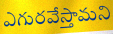
ఎగురవేస్తామని